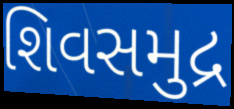
શિવસમુદ્ર